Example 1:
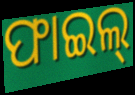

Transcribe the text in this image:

ଫାଇଲ୍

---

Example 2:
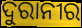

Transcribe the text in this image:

ଦୁରାନୀର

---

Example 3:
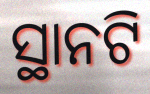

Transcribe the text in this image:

ସ୍ଥାନଟି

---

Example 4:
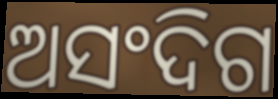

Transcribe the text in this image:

ଅସଂଦିଗ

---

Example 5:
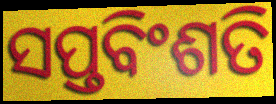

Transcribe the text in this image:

ସପ୍ତବିଂଶତି